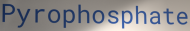
Pyrophosphate